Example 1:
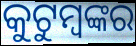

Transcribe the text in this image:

କୁଟୁମ୍ବଙ୍କର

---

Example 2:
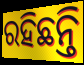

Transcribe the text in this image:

ରହିଛନ୍ତି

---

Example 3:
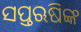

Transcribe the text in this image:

ସପ୍ତଋଷିଙ୍କ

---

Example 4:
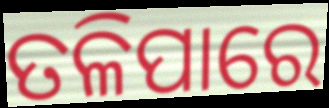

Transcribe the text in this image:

ତଳିପାରେ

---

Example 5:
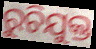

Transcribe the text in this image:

ରୁଚିଯୁକ୍ତ